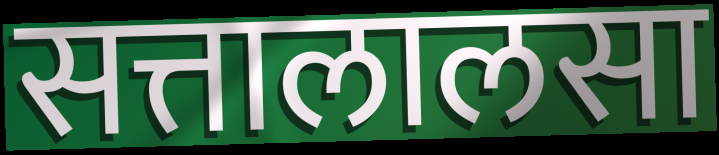
सत्तालालसा